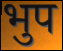
भुप